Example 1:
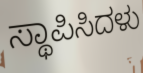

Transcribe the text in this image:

ಸ್ಥಾಪಿಸಿದಳು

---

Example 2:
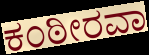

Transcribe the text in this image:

ಕಂಠೀರವಾ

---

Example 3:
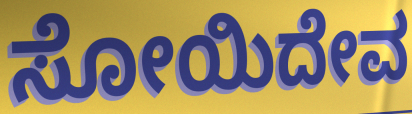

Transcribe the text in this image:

ಸೋಯಿದೇವ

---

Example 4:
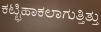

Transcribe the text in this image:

ಕಟ್ಟಿಹಾಕಲಾಗುತ್ತಿತ್ತು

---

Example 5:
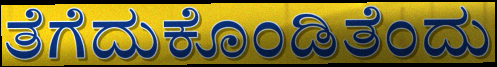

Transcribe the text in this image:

ತೆಗೆದುಕೊಂಡಿತೆಂದು